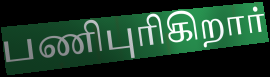
பணிபுரிகிறார்